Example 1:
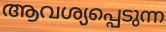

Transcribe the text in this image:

ആവശ്യപ്പെടുന്ന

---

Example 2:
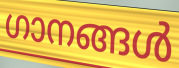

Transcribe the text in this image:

ഗാനങ്ങൾ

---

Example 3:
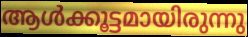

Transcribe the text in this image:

ആൾക്കൂട്ടമായിരുന്നു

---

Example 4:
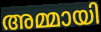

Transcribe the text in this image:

അമ്മായി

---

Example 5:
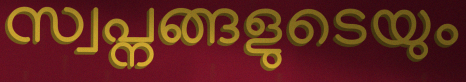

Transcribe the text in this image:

സ്വപ്നങ്ങളുടെയും